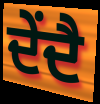
ਦੇਂਦੈ